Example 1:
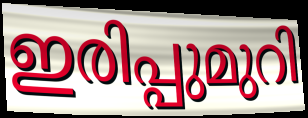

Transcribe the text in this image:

ഇരിപ്പുമുറി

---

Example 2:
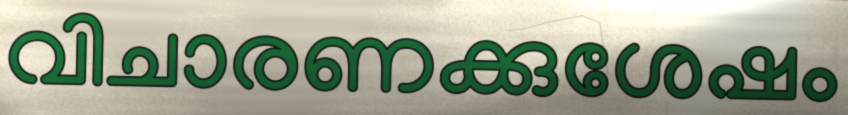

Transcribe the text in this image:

വിചാരണക്കുശേഷം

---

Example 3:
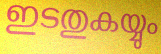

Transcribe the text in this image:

ഇടതുകയ്യും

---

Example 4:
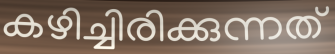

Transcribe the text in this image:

കഴിച്ചിരിക്കുന്നത്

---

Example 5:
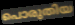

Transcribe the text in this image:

പൊരുതിയ